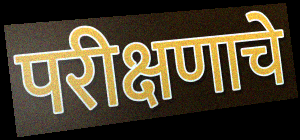
परीक्षणाचे